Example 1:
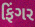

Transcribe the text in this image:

ફિંગર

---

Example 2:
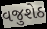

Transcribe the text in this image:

વજુશેઠ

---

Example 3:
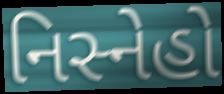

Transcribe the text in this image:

નિસ્નેહો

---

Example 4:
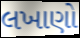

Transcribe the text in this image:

લખાણો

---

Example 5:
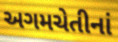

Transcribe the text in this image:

અગમચેતીનાં